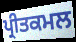
ਪ੍ਰੀਤਕਮਲ